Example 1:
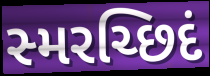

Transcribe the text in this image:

સ્મરચ્છિદં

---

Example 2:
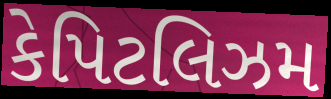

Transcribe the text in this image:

કેપિટલિઝમ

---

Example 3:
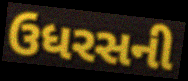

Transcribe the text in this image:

ઉધરસની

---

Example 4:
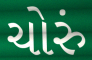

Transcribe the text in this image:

ચોરું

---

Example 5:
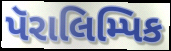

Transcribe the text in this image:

પૅરાલિમ્પિક